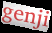
genji